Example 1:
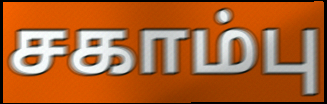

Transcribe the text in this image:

சகாம்பு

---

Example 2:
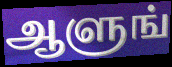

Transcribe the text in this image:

ஆளுங்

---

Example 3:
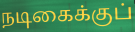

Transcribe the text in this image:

நடிகைக்குப்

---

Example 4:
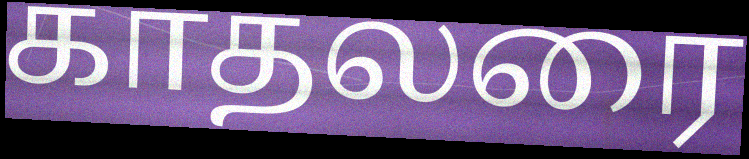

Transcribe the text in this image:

காதலரை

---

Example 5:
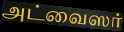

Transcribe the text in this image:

அட்வைஸர்